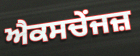
ਐਕਸਚੇਂਜਜ਼